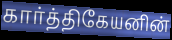
கார்த்திகேயனின்